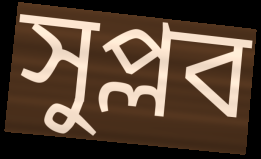
সুপ্লব